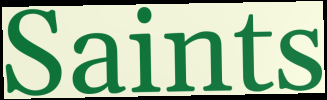
Saints